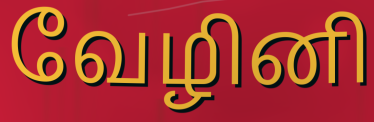
வேழினி